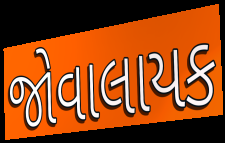
જોવાલાયક